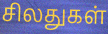
சிலதுகள்